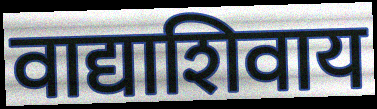
वाद्याशिवाय